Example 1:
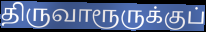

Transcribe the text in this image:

திருவாரூருக்குப்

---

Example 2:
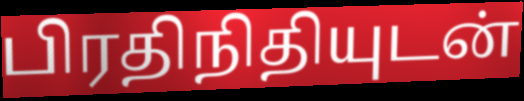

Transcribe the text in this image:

பிரதிநிதியுடன்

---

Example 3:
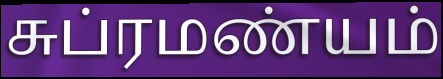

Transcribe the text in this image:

சுப்ரமண்யம்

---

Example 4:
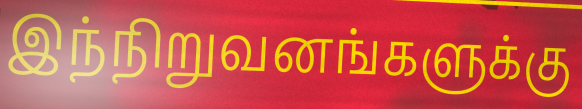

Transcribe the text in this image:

இந்நிறுவனங்களுக்கு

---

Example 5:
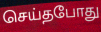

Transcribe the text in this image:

செய்தபோது